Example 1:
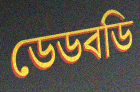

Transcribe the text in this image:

ডেডবডি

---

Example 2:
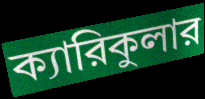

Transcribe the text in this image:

ক্যারিকুলার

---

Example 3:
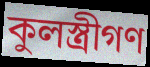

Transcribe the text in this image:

কুলস্ত্রীগণ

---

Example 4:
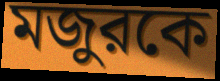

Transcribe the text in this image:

মজুরকে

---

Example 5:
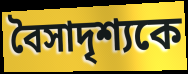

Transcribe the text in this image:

বৈসাদৃশ্যকে